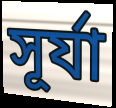
সূর্যা